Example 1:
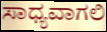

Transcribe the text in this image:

ಸಾಧ್ಯವಾಗಲಿ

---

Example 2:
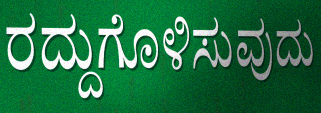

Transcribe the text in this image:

ರದ್ದುಗೊಳಿಸುವುದು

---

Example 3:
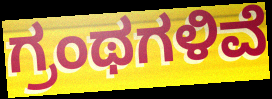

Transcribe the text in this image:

ಗ್ರಂಥಗಳಿವೆ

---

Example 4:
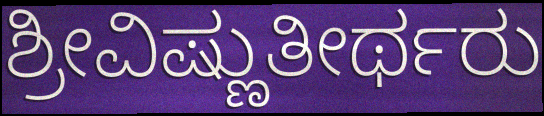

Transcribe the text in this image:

ಶ್ರೀವಿಷ್ಣುತೀರ್ಥರು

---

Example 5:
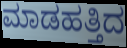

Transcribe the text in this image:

ಮಾಡಹತ್ತಿದ